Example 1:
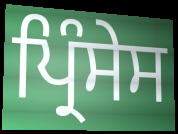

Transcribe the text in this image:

ਪ੍ਰਿੰਸੇਸ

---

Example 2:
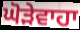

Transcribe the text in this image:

ਘੋੜੇਵਾਹਾ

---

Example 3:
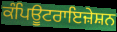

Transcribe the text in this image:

ਕੰਪਿਊਟਰਾਇਜ਼ੇਸ਼ਨ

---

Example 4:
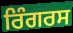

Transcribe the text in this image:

ਰਿੰਗਰਸ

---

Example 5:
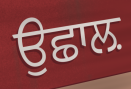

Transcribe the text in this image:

ਉਛਾਲ਼